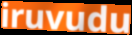
iruvudu